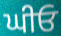
ਘੀਓ